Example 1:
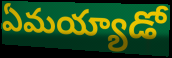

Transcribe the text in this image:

ఏమయ్యాడో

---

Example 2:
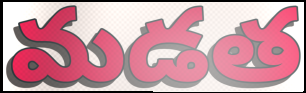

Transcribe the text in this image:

మడత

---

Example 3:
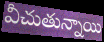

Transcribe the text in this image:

వీచుతున్నాయి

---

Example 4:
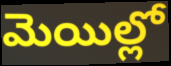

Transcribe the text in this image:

మెయిల్లో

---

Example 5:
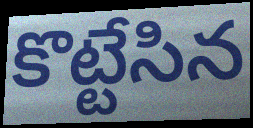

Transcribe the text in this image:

కొట్టేసిన